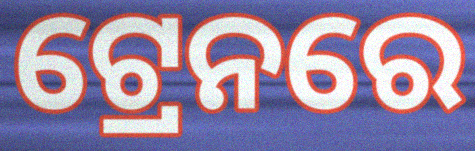
ଟ୍ରେନରେ